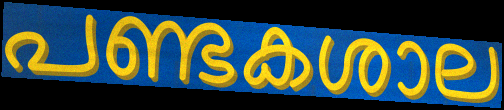
പണ്ടകശാല